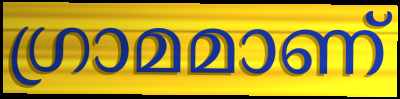
ഗ്രാമമാണ്